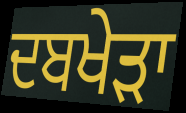
ਦਬਖੇੜਾ